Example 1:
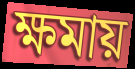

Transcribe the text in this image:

ক্ষমায়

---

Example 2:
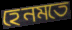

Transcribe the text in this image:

হেনমতে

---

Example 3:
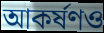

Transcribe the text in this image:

আকর্ষণও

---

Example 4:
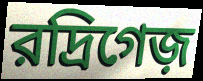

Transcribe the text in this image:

রদ্রিগেজ়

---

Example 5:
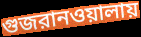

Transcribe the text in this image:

গুজরানওয়ালায়